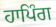
ਹਾਪਿੰਗ